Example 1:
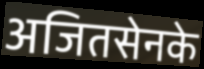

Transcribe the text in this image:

अजितसेनके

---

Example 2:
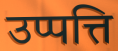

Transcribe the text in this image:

उप्पत्ति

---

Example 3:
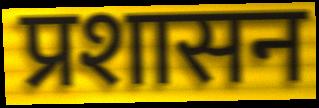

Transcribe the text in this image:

प्रशासन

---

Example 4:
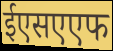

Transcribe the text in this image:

ईएसएएफ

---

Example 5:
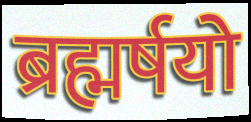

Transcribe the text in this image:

ब्रह्मर्षयो